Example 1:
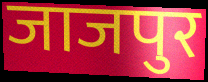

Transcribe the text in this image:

जाजपुर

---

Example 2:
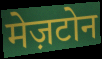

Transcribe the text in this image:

मेज़टोन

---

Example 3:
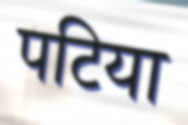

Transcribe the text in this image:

पटिया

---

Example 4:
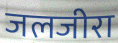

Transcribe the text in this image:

जलजीरा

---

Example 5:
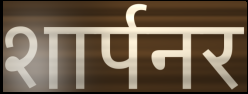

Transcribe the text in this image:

शार्पनर